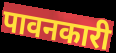
पावनकारी